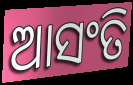
ଆସଂତି